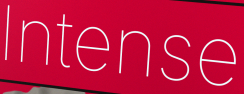
Intense